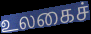
உலகைச்